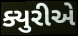
ક્યુરીએ